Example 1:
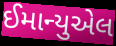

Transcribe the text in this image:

ઈમાન્યુએલ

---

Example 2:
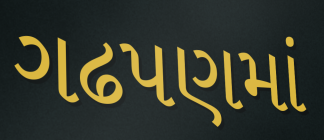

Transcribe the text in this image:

ગઢપણમાં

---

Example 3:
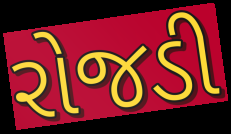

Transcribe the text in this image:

રોજડી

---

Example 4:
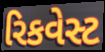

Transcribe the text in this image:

રિકવેસ્ટ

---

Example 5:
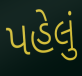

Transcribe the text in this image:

પહેલું